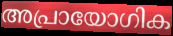
അപ്രായോഗിക